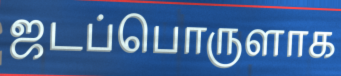
ஜடப்பொருளாக